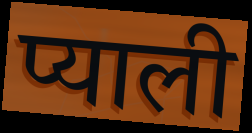
प्याली